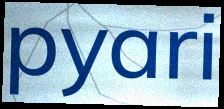
pyari